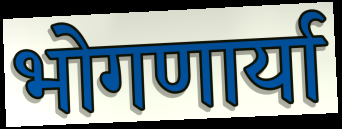
भोगणार्या